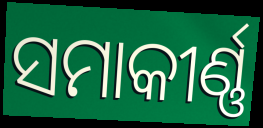
ସମାକୀର୍ଣ୍ଣ